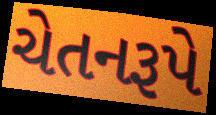
ચેતનરૂપે